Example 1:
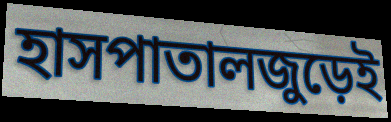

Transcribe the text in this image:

হাসপাতালজুড়েই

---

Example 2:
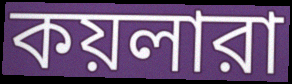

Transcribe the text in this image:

কয়লারা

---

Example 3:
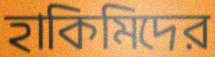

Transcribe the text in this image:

হাকিমিদের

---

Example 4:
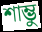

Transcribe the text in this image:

শাম্ভু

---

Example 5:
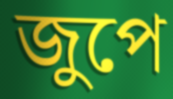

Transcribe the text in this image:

জুপে